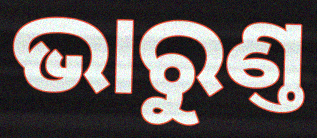
ଭାରୁଣ୍ତ